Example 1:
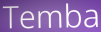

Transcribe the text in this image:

Temba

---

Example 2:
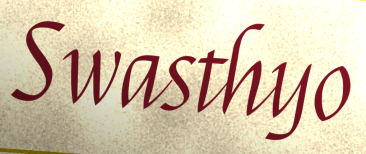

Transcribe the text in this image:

Swasthyo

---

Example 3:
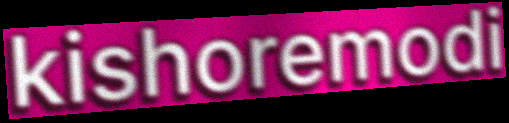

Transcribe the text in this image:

kishoremodi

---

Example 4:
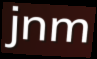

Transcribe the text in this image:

jnm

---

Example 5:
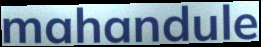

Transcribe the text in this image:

mahandule